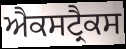
ਐਕਸਟ੍ਰੈਕਸ